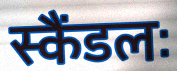
स्कैंडलः